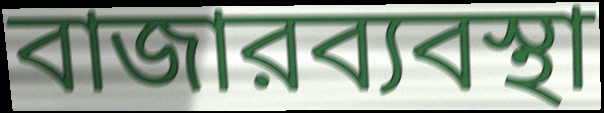
বাজারব্যবস্থা